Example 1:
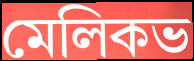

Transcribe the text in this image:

মেলিকভ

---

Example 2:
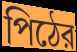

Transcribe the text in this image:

পিঠের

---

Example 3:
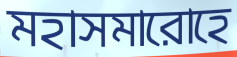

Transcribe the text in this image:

মহাসমারোহে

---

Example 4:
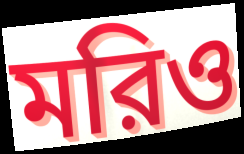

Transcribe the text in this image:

মরিও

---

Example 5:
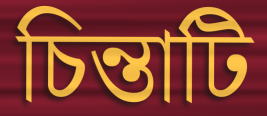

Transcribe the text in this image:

চিন্তাটি